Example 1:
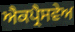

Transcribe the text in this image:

ਐਕਪ੍ਰੈਸਵੇਅ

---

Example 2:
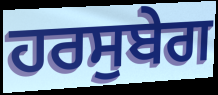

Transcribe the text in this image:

ਹਰਸੁਬੇਗ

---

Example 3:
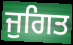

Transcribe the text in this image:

ਜੁਗਿਤ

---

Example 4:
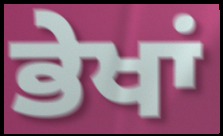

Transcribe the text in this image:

ਭੇਖਾਂ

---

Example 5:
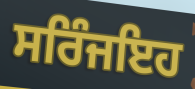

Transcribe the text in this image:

ਸਰਿੰਜਇਹ